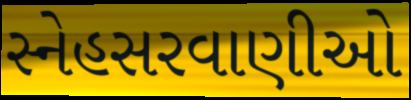
સ્નેહસરવાણીઓ